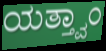
ಯತ್ತ್ವಾಂ